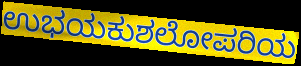
ಉಭಯಕುಶಲೋಪರಿಯ